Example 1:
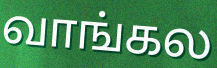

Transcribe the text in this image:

வாங்கல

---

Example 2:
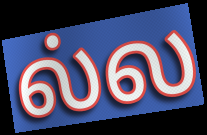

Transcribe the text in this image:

ல்ல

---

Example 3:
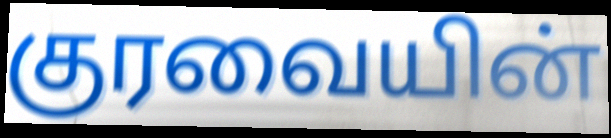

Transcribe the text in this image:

குரவையின்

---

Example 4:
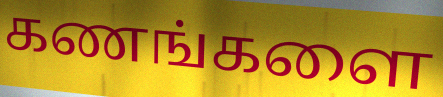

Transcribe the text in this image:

கணங்களை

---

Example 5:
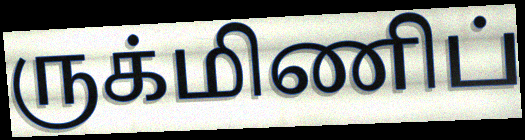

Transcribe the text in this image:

ருக்மிணிப்